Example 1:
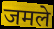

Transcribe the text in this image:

जमले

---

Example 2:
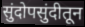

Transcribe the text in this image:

सुंदोपसुंदीतून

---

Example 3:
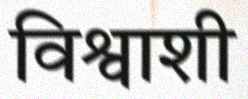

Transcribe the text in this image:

विश्वाशी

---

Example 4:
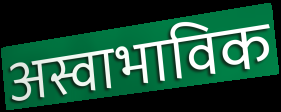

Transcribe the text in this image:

अस्वाभाविक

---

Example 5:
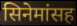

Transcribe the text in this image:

सिनेमांसह